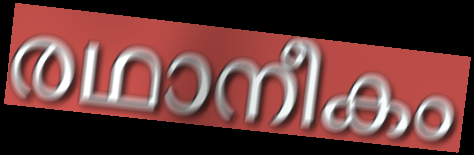
രഥാനീകം